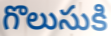
గొలుసుకి